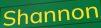
Shannon